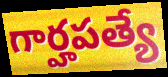
గార్హపత్యే